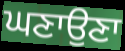
ਘਣਾਉਣਾ